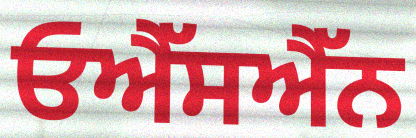
ਓਐੱਸਐੱਨ